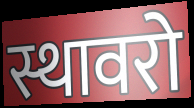
स्थावरो